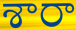
శారా